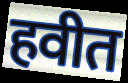
हवीत